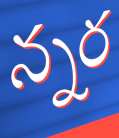
న్నర